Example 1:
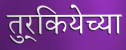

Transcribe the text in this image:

तुर्कियेच्या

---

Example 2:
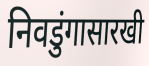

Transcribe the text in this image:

निवडुंगासारखी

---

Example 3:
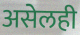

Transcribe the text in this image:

असेलही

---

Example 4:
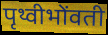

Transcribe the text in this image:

पृथ्वीभोंवती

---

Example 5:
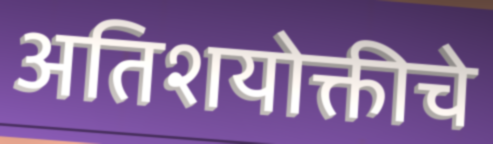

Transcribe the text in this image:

अतिशयोक्तीचे